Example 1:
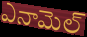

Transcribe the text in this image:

ఎనామెల్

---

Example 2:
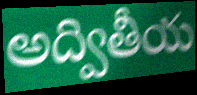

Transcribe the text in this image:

అద్వితీయ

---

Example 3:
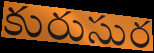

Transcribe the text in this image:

కురుసుర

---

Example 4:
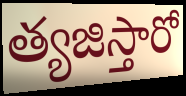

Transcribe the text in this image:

త్యజిస్తారో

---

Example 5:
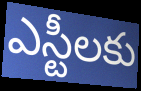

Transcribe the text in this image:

ఎస్టీలకు